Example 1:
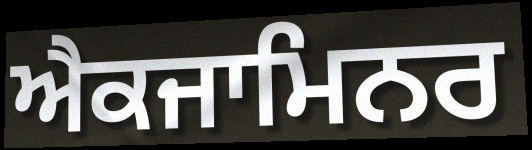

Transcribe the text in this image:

ਐਕਜਾਮਿਨਰ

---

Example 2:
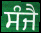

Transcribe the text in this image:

ਸੰਜੈ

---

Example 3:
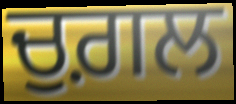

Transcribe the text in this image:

ਚੁਗ਼ਲ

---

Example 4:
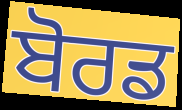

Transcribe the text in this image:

ਬੋਰਡ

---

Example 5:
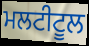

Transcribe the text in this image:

ਮਲਟੀਟੂਲ